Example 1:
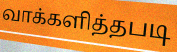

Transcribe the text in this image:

வாக்களித்தபடி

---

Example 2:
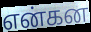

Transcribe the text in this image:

என்கன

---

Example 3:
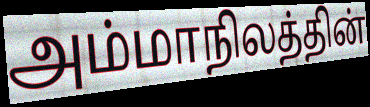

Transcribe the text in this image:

அம்மாநிலத்தின்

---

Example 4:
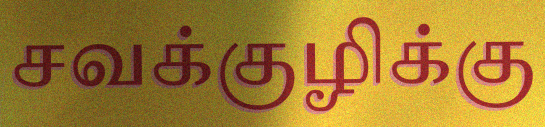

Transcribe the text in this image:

சவக்குழிக்கு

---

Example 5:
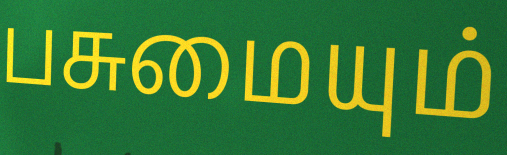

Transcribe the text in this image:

பசுமையும்